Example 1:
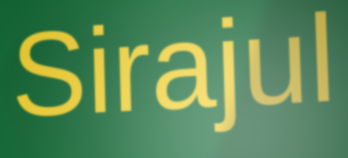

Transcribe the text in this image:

Sirajul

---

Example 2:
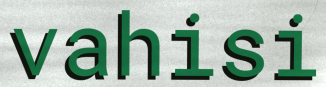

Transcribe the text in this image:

vahisi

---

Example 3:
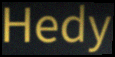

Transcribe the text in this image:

Hedy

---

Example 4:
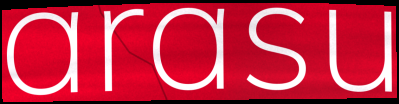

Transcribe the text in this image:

arasu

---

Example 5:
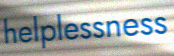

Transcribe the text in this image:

helplessness